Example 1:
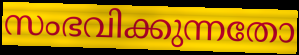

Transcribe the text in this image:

സംഭവിക്കുന്നതോ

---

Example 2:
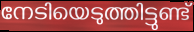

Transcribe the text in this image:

നേടിയെടുത്തിട്ടുണ്ട്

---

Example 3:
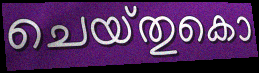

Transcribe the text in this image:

ചെയ്‌തുകൊ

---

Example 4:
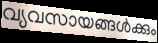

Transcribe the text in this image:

വ്യവസായങ്ങൾക്കും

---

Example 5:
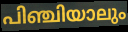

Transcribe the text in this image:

പിഞ്ചിയാലും